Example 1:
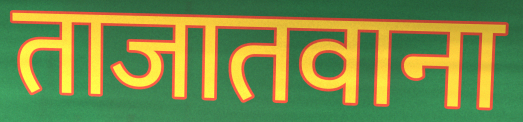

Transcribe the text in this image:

ताजातवाना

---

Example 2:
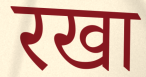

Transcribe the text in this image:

रखा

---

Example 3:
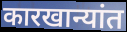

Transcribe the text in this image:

कारखान्यांत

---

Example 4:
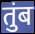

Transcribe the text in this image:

तुंब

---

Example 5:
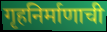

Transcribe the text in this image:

गृहनिर्माणाची